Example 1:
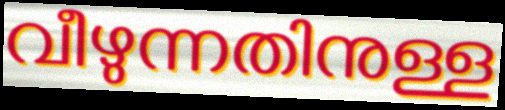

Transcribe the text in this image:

വീഴുന്നതിനുള്ള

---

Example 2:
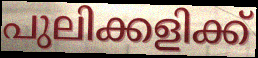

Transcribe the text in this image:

പുലിക്കളിക്ക്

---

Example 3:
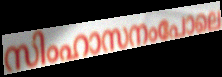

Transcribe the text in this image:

സിംഹാസനംപോലെ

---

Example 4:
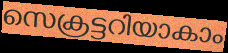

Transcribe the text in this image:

സെക്രട്ടറിയാകാം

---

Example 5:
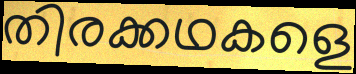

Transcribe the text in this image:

തിരക്കഥകളെ